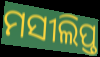
ମସୀଲିପ୍ତ